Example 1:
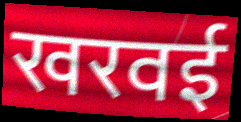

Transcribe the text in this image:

खरवई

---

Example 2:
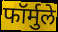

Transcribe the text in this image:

फॉर्मुले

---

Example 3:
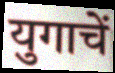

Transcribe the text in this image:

युगाचें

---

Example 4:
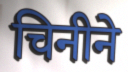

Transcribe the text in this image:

चिनीने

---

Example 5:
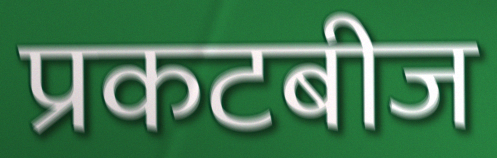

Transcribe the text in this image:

प्रकटबीज